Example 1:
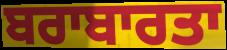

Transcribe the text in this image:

ਬਰਾਬਾਰਤਾ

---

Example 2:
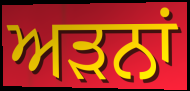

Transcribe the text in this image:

ਅੜਨਾਂ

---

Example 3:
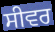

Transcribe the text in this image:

ਸੀਵਰ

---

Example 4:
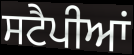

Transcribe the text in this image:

ਸਟੈਪੀਆਂ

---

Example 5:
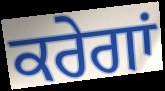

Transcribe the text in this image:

ਕਰੇਗਾਂ